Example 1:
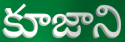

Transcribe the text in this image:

కూజాని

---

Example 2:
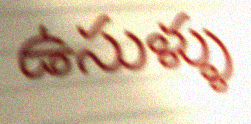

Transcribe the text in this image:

ఉసుళ్ళు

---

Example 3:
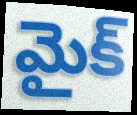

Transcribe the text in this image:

మైక్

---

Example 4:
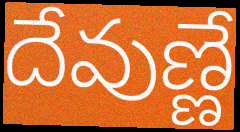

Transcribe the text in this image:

దేవుణ్ణే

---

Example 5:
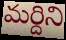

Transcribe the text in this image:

మర్దిని